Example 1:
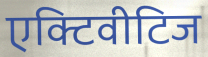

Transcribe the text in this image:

एक्टिवीटिज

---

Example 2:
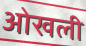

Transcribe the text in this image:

ओखली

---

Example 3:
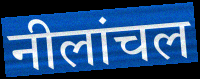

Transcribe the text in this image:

नीलांचल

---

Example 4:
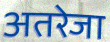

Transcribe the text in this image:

अतरेजा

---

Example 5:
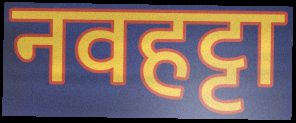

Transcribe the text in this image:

नवहट्टा